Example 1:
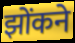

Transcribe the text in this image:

झोंकने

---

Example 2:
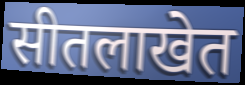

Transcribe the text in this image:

सीतलाखेत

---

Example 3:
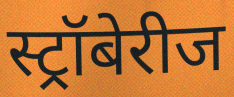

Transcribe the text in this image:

स्ट्रॉबेरीज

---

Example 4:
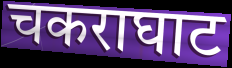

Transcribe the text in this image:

चकराघाट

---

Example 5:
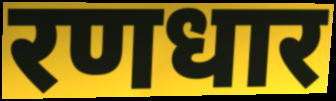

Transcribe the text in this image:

रणधार